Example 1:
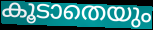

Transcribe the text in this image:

കൂടാതെയും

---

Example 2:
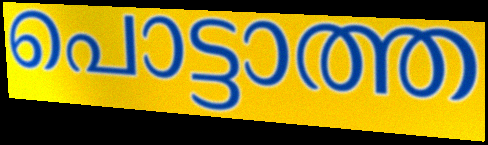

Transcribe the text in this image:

പൊട്ടാത്ത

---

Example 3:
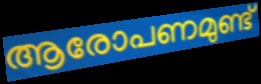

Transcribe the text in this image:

ആരോപണമുണ്ട്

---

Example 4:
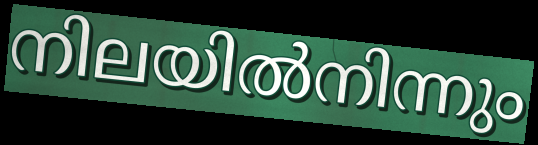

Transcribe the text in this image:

നിലയിൽനിന്നും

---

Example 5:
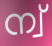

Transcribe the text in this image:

ന്വ്